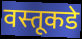
वस्तूकडे